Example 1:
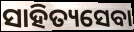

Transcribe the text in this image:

ସାହିତ୍ୟସେବା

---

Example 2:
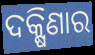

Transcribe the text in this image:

ଦକ୍ଷିଣାର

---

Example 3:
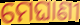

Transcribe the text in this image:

ମେଘାଣୀ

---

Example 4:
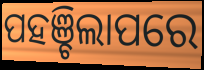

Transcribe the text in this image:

ପହଞ୍ଚିଲାପରେ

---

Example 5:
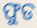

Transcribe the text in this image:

ଫୁଡ